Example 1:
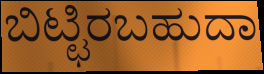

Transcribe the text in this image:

ಬಿಟ್ಟಿರಬಹುದಾ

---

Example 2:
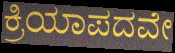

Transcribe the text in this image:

ಕ್ರಿಯಾಪದವೇ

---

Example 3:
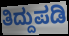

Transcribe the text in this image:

ತಿದ್ದುಪಡಿ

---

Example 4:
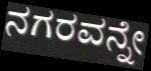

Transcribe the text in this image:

ನಗರವನ್ನೇ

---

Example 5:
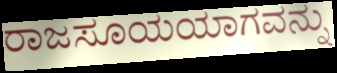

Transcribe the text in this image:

ರಾಜಸೂಯಯಾಗವನ್ನು